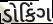
ડોકિંગ